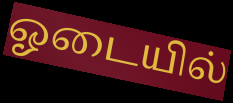
ஓடையில்